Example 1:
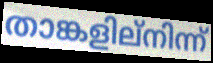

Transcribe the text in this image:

താങ്കളില്നിന്ന്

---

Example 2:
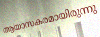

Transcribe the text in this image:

ആയാസകരമായിരുന്നു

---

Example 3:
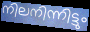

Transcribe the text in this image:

നിലനിന്നിട്ടും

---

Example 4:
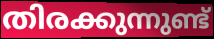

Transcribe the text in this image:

തിരക്കുന്നുണ്ട്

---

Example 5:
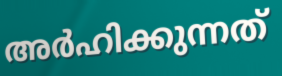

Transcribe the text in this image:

അർഹിക്കുന്നത്